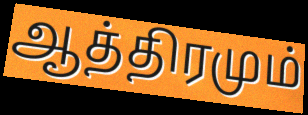
ஆத்திரமும்